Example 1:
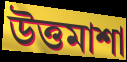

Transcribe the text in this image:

উত্তমাশা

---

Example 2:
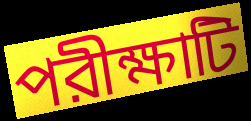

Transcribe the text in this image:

পরীক্ষাটি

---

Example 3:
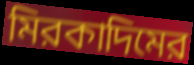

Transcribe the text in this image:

মিরকাদিমের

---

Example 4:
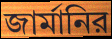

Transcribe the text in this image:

জার্মানির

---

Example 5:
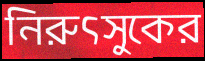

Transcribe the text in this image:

নিরুৎসুকের